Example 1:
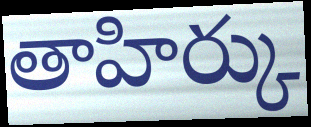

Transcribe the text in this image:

తాహిర్కు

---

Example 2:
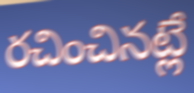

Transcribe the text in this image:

రచించినట్లే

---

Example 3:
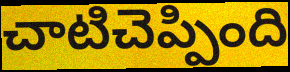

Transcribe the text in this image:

చాటిచెప్పింది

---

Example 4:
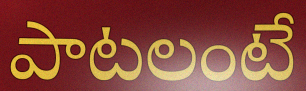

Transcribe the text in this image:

పాటలంటే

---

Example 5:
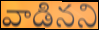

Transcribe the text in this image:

వాడినని